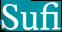
Sufi